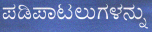
ಪಡಿಪಾಟಲುಗಳನ್ನು